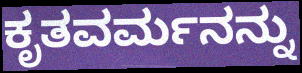
ಕೃತವರ್ಮನನ್ನು